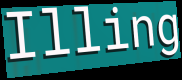
Illing